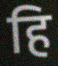
हि